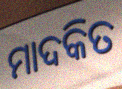
ମାଦକିତ